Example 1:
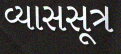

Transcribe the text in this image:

વ્યાસસૂત્ર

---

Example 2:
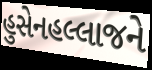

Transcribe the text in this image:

હુસેનહલ્લાજને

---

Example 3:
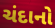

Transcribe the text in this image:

ચંદાનો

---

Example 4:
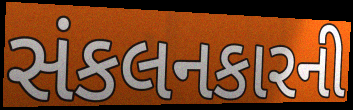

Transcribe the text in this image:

સંકલનકારની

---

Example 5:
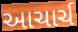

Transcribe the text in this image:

આચાર્ચ